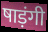
षाड़ंगी